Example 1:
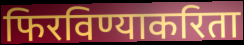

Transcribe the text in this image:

फिरविण्याकरिता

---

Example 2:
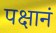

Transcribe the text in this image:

पक्षानं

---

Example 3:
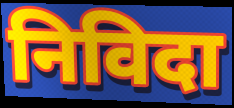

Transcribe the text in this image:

निविदा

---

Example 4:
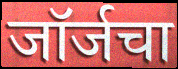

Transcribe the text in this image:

जॉर्जचा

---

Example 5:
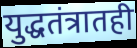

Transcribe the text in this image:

युद्धतंत्रातही